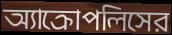
অ্যাক্রোপলিসের